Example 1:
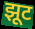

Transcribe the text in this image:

झूट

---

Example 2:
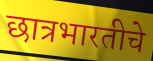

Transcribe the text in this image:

छात्रभारतीचे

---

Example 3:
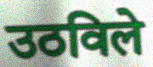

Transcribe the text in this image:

उठविले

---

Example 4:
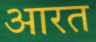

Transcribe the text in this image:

आरत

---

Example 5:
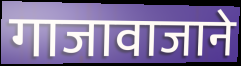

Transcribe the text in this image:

गाजावाजाने